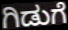
ಗಿಡುಗೆ